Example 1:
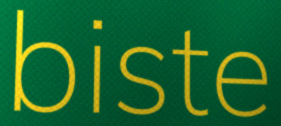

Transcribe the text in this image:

biste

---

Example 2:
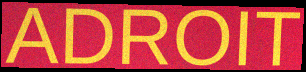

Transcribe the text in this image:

ADROIT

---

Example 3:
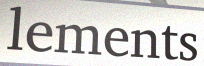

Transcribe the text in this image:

lements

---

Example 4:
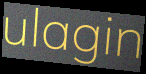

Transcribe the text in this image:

ulagin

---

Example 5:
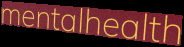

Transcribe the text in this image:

mentalhealth